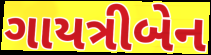
ગાયત્રીબેન